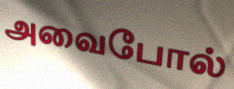
அவைபோல்